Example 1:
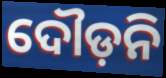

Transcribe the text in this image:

ଦୌଡ଼ନି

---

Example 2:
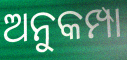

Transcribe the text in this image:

ଅନୁକମ୍ପା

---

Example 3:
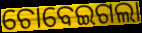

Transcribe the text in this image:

ଚୋବେଇଗଲା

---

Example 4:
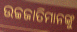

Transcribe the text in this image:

ଉଚ୍ଚଜାତିମାନଙ୍କୁ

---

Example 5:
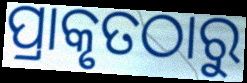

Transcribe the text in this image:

ପ୍ରାକୃତଠାରୁ